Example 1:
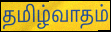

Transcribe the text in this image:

தமிழ்வாதம்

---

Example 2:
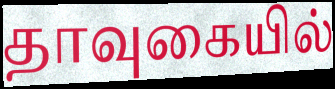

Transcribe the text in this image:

தாவுகையில்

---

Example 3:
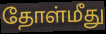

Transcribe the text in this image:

தோள்மீது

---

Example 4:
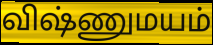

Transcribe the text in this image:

விஷ்ணுமயம்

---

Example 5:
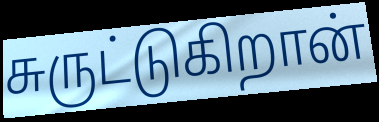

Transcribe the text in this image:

சுருட்டுகிறான்